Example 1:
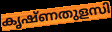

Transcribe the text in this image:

കൃഷ്ണതുളസി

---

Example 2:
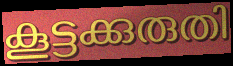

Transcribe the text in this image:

കൂട്ടക്കുരുതി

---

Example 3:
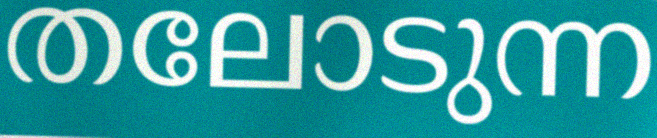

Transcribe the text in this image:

തലോടുന്ന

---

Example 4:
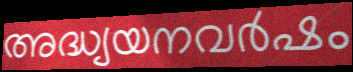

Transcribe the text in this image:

അദ്ധ്യയനവർഷം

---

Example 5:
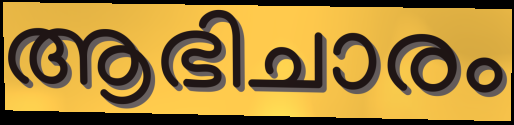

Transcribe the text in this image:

ആഭിചാരം